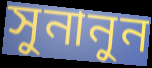
সুনানুন